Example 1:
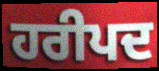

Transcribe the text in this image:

ਹਰੀਪਦ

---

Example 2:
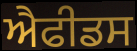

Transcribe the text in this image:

ਐਫੀਡਸ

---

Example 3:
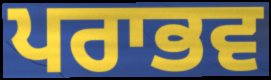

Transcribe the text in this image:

ਪਰਾਭਵ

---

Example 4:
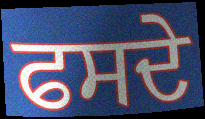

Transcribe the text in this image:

ਫਸਦੇ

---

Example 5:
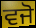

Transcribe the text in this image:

ਵਜੋ